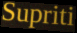
Supriti